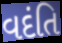
વદંતિ